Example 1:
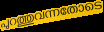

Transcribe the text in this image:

പുറത്തുവന്നതോടെ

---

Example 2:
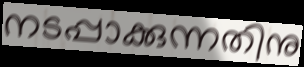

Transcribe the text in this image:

നടപ്പാക്കുന്നതിനു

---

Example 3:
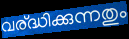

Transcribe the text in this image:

വര്ദ്ധിക്കുന്നതും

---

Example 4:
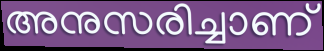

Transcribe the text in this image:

അനുസരിച്ചാണ്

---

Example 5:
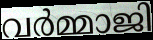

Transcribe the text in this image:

വർമ്മാജി